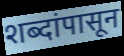
शब्दांपासून